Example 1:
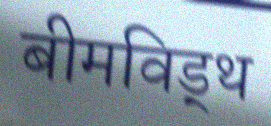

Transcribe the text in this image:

बीमविड्थ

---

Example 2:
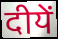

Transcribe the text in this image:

दीयें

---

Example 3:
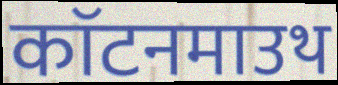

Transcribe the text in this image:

कॉटनमाउथ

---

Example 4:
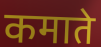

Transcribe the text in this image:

कमाते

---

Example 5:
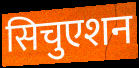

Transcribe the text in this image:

सिचुएशन